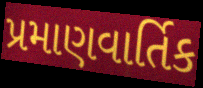
પ્રમાણવાર્તિક